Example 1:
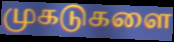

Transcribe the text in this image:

முகடுகளை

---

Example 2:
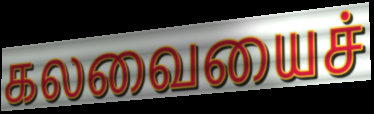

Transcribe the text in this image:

கலவையைச்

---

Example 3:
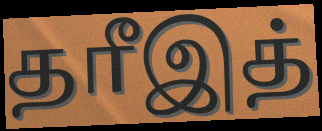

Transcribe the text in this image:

தரீஇத்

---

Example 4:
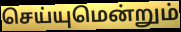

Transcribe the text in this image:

செய்யுமென்றும்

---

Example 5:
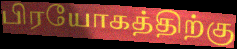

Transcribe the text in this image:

பிரயோகத்திற்கு